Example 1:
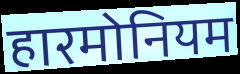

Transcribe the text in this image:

हारमोनियम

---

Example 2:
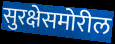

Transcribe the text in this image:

सुरक्षेसमोरील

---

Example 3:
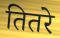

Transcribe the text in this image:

तितरे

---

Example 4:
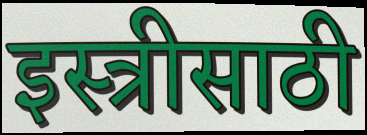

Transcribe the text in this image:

इस्त्रीसाठी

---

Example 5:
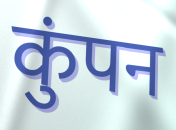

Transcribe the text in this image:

कुंपन